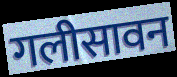
गलीसावन